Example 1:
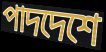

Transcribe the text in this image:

পাদদেশে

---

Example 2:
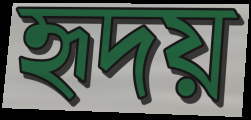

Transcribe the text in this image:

হৃদয়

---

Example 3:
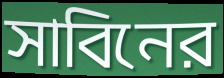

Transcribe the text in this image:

সাবিনের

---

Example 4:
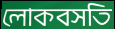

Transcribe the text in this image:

লোকবসতি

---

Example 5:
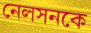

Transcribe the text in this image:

নেলসনকে